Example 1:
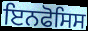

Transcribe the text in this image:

ਇਨਫੋਸਿਸ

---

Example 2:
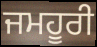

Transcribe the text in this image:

ਜਮਹੂਰੀ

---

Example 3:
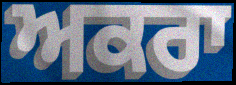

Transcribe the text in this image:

ਅਕਰਾ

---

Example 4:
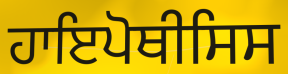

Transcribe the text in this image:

ਹਾਇਪੋਥੀਸਿਸ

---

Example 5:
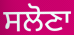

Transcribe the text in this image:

ਸਲੋਣਾ